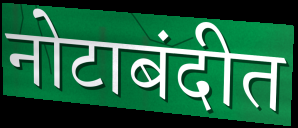
नोटाबंदीत